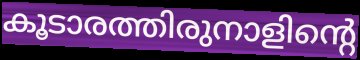
കൂടാരത്തിരുനാളിന്റെ